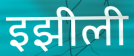
इझीली